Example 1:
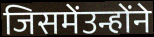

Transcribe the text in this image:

जिसमेंउन्होंने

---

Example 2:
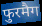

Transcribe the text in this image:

फुरमैग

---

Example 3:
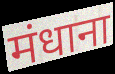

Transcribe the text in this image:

मंधाना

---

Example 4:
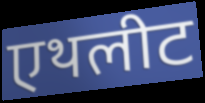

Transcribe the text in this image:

एथलीट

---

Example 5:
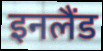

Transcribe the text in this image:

इनलैंड